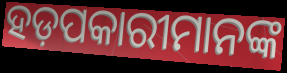
ହଡ଼ପକାରୀମାନଙ୍କ